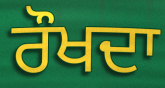
ਰੌਖਦਾ